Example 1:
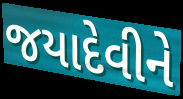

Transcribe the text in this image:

જયાદેવીને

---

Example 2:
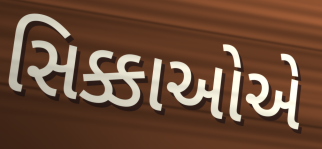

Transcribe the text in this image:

સિક્કાઓએ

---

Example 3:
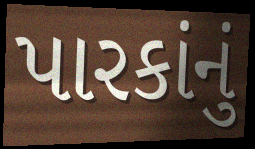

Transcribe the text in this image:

પારકાંનું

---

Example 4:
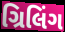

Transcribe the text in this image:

ગ્રિલિંગ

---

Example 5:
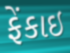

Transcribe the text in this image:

ફેંકાઇ